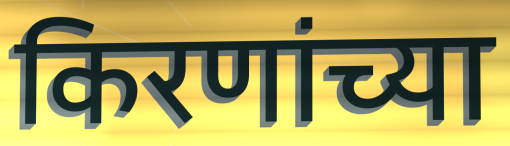
किरणांच्या